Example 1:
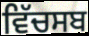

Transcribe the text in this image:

ਵਿੱਚਸਬ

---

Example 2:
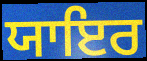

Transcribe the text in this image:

ਯਾਇਰ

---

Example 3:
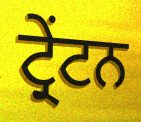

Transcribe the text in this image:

ਟ੍ਰੇਂਟਨ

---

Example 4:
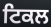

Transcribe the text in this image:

ਟਿਕਲ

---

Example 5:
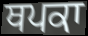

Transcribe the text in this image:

ਥਪਕਾ